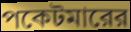
পকেটমারের